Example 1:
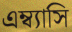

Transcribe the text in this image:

এম্ব্যাসি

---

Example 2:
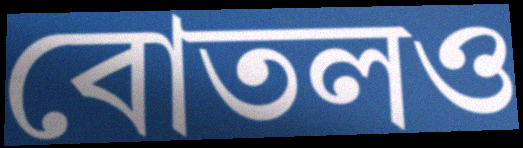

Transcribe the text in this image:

বোতলও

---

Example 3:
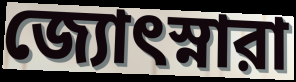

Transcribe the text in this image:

জ্যোৎস্নারা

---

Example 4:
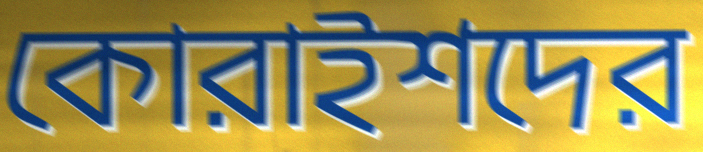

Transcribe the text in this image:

কোরাইশদের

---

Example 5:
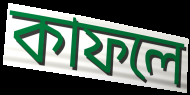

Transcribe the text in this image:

কাফলে